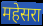
महेसरा